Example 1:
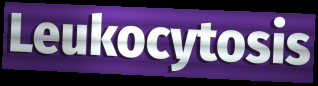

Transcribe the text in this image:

Leukocytosis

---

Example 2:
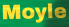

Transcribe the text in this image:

Moyle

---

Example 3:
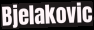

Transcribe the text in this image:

Bjelakovic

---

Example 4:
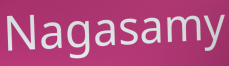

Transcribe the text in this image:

Nagasamy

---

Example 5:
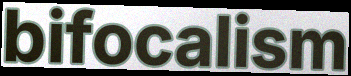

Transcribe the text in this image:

bifocalism